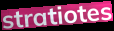
stratiotes